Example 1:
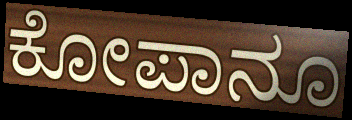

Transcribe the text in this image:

ಕೋಪಾನೂ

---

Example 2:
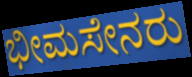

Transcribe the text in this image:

ಭೀಮಸೇನರು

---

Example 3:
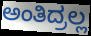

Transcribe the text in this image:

ಅಂತಿದ್ರಲ್ಲ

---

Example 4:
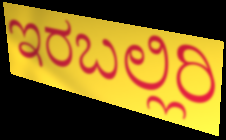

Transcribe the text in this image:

ಇರಬಲ್ಲಿರಿ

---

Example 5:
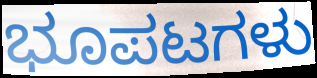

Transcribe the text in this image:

ಭೂಪಟಗಳು